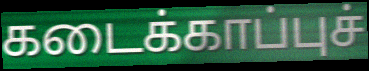
கடைக்காப்புச்